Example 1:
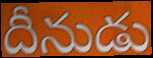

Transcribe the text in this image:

దీనుడు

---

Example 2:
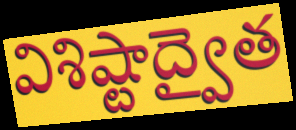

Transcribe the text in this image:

విశిష్టాద్వైత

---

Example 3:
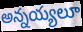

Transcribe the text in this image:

అన్నయ్యలూ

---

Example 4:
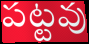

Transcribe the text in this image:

పట్టవు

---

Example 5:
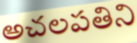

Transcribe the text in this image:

అచలపతిని